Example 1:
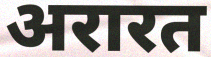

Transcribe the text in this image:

अरारत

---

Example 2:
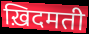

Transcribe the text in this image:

ख़िदमती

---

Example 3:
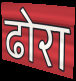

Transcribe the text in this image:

ढोरा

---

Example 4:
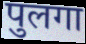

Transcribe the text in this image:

पुलगा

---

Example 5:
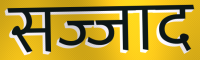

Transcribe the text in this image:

सज्‍जाद